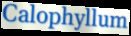
Calophyllum